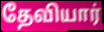
தேவியார்